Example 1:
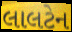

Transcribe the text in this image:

લાલટેન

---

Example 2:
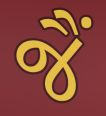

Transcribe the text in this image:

જૈં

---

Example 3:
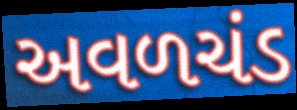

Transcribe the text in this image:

અવળચંડ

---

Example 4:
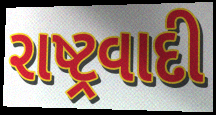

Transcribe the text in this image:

રાષ્ટ્રવાદી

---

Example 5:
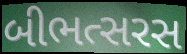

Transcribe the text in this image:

બીભત્સરસ